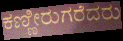
ಕಣ್ಣೀರುಗರೆದರು